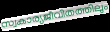
സ്വകാര്യജീവിതത്തിലും